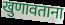
खुणावताना